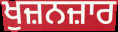
ਖੁਜ਼ਨਜ਼ਾਰ